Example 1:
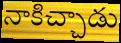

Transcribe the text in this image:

నాకిచ్చాడు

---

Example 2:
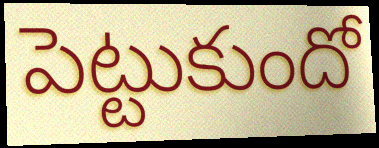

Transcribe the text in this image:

పెట్టుకుందో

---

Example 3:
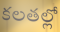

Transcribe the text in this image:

కలతల్లో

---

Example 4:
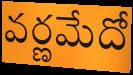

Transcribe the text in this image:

వర్ణమేదో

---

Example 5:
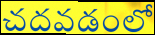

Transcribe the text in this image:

చదవడంలో